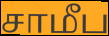
சாமீப